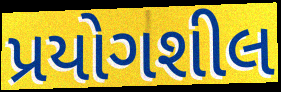
પ્રયોગશીલ